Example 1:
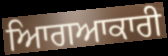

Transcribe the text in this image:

ਆਿਗਆਕਾਰੀ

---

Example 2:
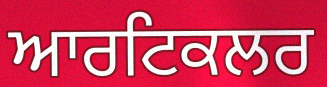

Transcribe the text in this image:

ਆਰਟਿਕਲਰ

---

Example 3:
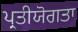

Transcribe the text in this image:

ਪ੍ਰਤੀਯੋਗਤਾ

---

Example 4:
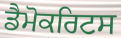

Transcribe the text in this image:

ਡੈਮੋਕਰਿਟਸ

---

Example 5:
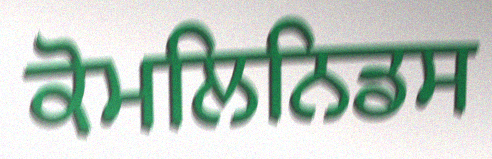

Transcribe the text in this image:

ਕੋਮਲਿਨਿਡਸ